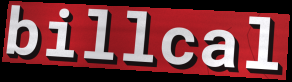
billcal